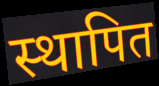
स्थापित